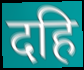
दहि